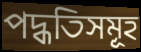
পদ্ধতিসমূহ